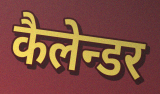
कैलेन्डर